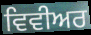
ਵਿਵੀਅਰ